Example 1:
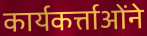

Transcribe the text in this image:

कार्यकर्त्ताओंने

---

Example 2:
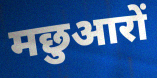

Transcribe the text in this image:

मछुआरों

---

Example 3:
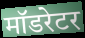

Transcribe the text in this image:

मॉडरेटर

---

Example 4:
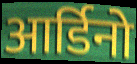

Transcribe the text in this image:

आर्डिनो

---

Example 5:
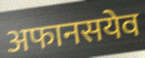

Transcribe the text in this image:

अफानसयेव